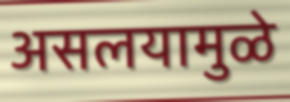
असलयामुळे